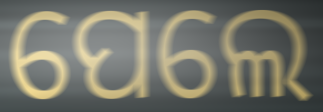
ପେଲେ